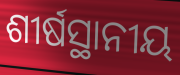
ଶୀର୍ଷସ୍ଥାନୀୟ